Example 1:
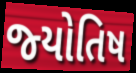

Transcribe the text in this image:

જ્‍યોતિષ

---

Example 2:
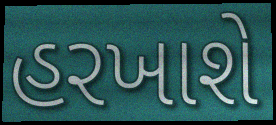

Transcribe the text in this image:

હરખાશે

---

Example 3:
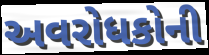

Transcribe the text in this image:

અવરોધકોની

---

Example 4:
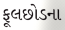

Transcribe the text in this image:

ફૂલછોડના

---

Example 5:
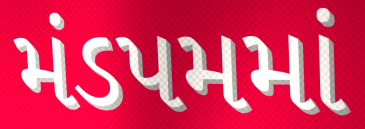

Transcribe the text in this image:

મંડપમમાં